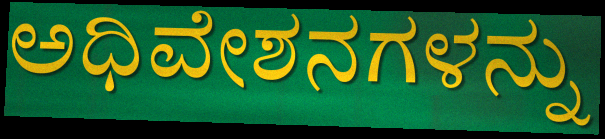
ಅಧಿವೇಶನಗಳನ್ನು